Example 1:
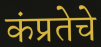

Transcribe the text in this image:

कंप्रतेचे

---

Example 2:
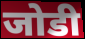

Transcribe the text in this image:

जोडी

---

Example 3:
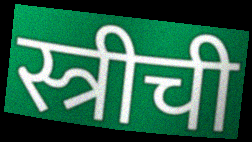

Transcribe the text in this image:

स्त्रीची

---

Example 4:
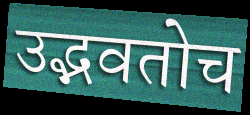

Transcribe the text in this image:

उद्भवतोच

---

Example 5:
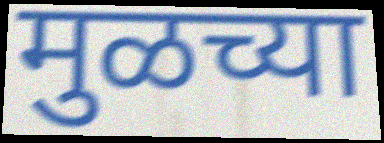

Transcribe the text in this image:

मुळच्या